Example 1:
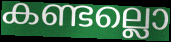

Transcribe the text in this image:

കണ്ടല്ലൊ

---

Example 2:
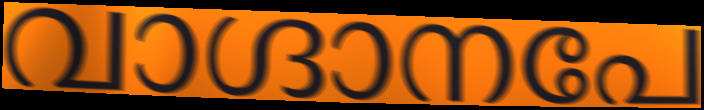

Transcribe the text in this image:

വാഗ്ദാനപേ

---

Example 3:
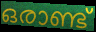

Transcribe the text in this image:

ഒരാണ്ട്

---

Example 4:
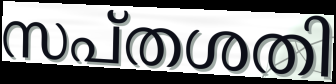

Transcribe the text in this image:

സപ്തശതി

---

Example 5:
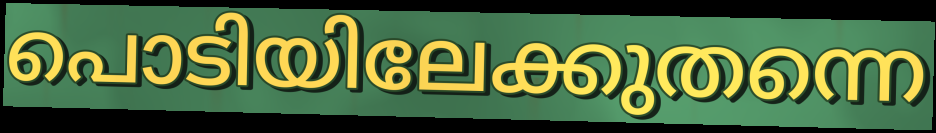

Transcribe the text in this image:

പൊടിയിലേക്കുതന്നെ